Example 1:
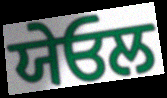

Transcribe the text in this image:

ਯੇਓਲ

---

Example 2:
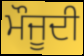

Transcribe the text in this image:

ਮੌਜੂਦੀ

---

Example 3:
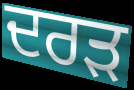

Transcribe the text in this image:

ਦਰੜ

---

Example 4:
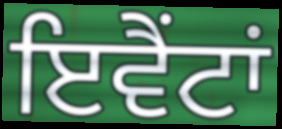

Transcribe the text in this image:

ਇਵੈਂਟਾਂ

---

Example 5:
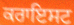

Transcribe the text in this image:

ਕਰਾਇਸਟ